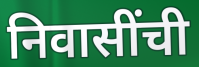
निवासींची